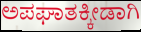
ಅಪಘಾತಕ್ಕೀಡಾಗಿ